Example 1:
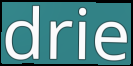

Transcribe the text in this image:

drie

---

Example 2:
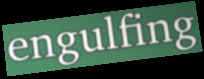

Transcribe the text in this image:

engulfing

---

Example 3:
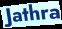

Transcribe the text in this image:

Jathra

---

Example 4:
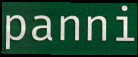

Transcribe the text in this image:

panni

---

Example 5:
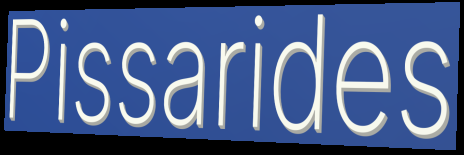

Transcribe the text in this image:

Pissarides